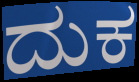
ದುಕ